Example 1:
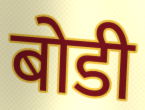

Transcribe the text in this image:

बोडी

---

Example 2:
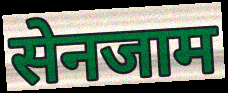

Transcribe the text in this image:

सेनजाम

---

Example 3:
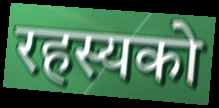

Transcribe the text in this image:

रहस्यको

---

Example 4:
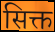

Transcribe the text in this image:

सिक्त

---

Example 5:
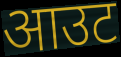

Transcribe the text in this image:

आउट